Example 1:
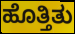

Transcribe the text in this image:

ಹೊತ್ತಿತು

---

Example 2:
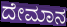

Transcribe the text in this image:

ದೇಮಾನ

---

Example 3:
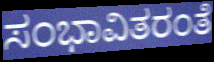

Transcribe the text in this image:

ಸಂಭಾವಿತರಂತೆ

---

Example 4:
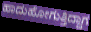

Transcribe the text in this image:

ಹಾದುಹೋಗುತ್ತಿದ್ದಾಗ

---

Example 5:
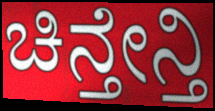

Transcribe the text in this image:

ಚಿನ್ತೇನ್ತಿ